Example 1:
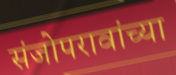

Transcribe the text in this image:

संजोपरावांच्या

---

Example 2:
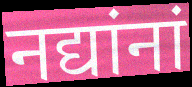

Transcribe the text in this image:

नद्यांनां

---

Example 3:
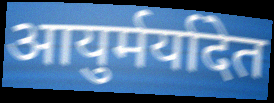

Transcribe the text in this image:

आयुर्मर्यादेत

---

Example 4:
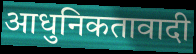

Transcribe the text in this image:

आधुनिकतावादी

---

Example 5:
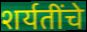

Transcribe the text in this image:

शर्यतींचे